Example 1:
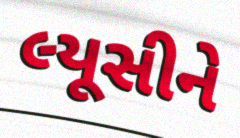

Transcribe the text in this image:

લ્યૂસીને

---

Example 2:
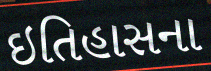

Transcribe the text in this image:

ઇતિહાસના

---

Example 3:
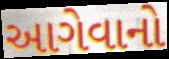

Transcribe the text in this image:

આગેવાનો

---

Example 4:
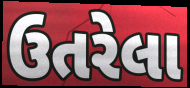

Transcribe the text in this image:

ઉતરેલા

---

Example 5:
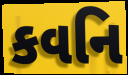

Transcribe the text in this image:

કવનિ